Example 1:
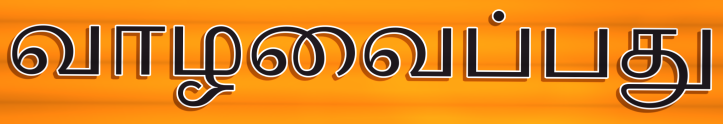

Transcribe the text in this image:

வாழவைப்பது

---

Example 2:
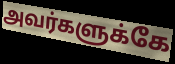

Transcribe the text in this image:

அவர்களுக்கே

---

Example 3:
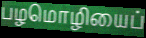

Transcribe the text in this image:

பழமொழியைப்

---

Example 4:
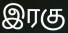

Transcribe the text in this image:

இரகு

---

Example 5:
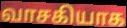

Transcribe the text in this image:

வாசகியாக